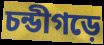
চন্ডীগড়ে